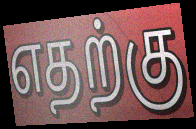
எதற்கு